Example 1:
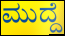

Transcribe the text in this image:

ಮುದ್ದೆ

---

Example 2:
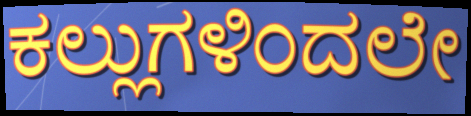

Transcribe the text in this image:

ಕಲ್ಲುಗಳಿಂದಲೇ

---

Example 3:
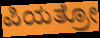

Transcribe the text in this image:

ಪಿಯತ್ರೋ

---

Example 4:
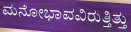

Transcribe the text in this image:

ಮನೋಭಾವವಿರುತ್ತಿತ್ತು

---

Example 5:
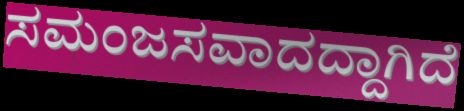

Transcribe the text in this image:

ಸಮಂಜಸವಾದದ್ದಾಗಿದೆ